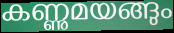
കണ്ണുമയങ്ങും